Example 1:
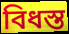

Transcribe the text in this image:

বিধস্ত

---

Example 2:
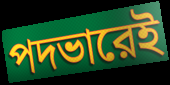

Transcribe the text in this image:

পদভারেই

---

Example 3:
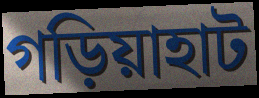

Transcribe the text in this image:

গড়িয়াহাট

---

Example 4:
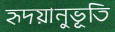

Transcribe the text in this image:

হৃদয়ানুভূতি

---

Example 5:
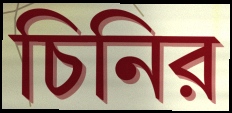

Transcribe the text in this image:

চিনির